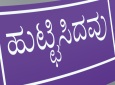
ಹುಟ್ಟಿಸಿದವು